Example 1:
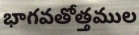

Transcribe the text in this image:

భాగవతోత్తముల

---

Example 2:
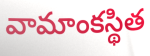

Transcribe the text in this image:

వామాంకస్థిత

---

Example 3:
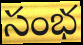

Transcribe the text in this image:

సంభ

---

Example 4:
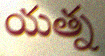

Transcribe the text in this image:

యత్న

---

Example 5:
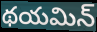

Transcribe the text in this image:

థయమిన్